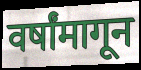
वर्षांमागून